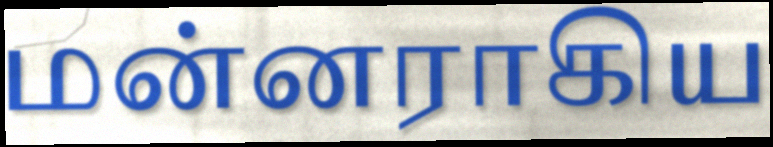
மன்னராகிய